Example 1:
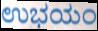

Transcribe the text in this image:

ಉಭಯಂ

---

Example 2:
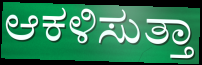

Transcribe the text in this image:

ಆಕಳಿಸುತ್ತಾ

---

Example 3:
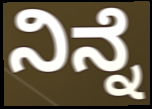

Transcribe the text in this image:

ನಿನ್ನೆ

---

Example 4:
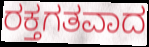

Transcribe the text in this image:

ರಕ್ತಗತವಾದ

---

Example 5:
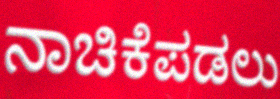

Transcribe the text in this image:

ನಾಚಿಕೆಪಡಲು